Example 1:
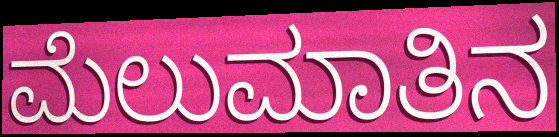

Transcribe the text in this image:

ಮೆಲುಮಾತಿನ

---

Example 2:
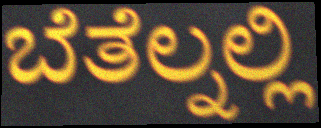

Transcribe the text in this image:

ಬೆತೆಲ್ನಲ್ಲಿ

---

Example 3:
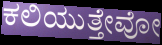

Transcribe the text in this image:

ಕಲಿಯುತ್ತೇವೋ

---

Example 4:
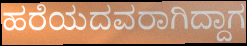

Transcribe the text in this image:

ಹರೆಯದವರಾಗಿದ್ದಾಗ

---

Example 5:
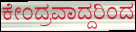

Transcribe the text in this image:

ಕೇಂದ್ರವಾದ್ದರಿಂದ